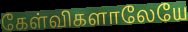
கேள்விகளாலேயே